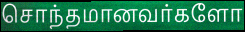
சொந்தமானவர்களோ